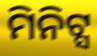
ମିନିଟ୍ସ